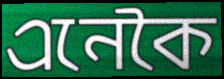
এনেকৈ